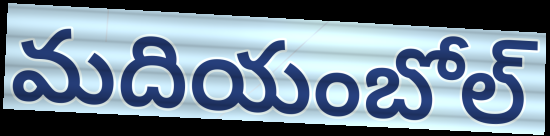
మదియంబోల్